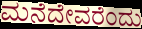
ಮನೆದೇವರೆಂದು